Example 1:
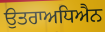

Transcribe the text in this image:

ਉਤਰਾਅਧਿਐਨ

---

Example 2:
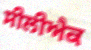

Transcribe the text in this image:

ਸੀਲੀਐਕ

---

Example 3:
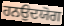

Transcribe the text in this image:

ਹਨਉਦਯੋਗ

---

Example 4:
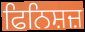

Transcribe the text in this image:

ਫਿਨਿਸ਼ਜ਼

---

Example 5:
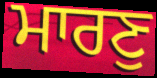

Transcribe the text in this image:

ਮਾਰਣੁ